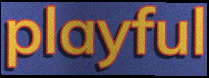
playful